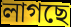
লাগছে